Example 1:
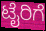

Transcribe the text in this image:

ಟೈರಿಗೆ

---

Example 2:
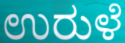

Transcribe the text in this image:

ಉರುಳೆ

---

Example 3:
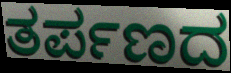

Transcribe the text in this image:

ತರ್ಪಣದ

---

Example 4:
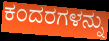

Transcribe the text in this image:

ಕಂದರಗಳನ್ನು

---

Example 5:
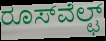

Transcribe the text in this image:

ರೂಸ್‍ವೆಲ್ಟ್